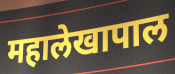
महालेखापाल